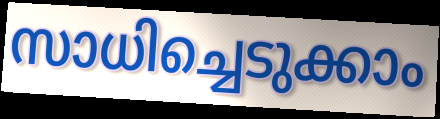
സാധിച്ചെടുക്കാം